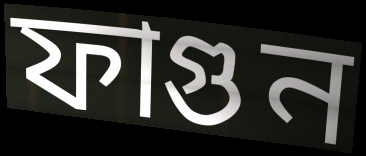
ফাগুন